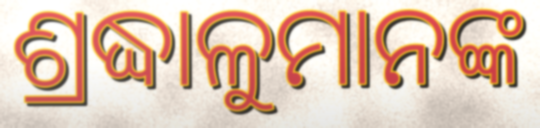
ଶ୍ରଦ୍ଧାଳୁମାନଙ୍କ